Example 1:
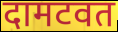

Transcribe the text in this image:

दामटवत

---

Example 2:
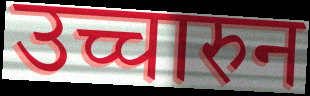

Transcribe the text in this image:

उच्चारुन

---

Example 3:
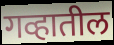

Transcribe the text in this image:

गव्हातील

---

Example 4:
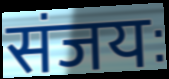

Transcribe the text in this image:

संजयः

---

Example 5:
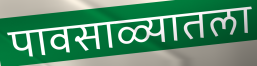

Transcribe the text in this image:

पावसाळ्यातला